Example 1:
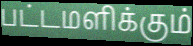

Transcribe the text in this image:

பட்டமளிக்கும்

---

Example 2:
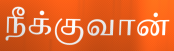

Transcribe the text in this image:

நீக்குவான்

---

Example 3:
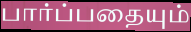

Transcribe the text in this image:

பார்ப்பதையும்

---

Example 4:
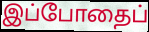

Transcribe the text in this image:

இப்போதைப்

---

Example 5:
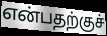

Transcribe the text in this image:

என்பதற்குச்